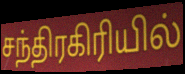
சந்திரகிரியில்